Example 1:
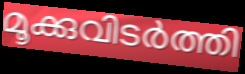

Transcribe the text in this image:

മൂക്കുവിടർത്തി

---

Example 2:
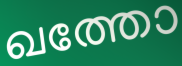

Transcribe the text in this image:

ഖത്തോ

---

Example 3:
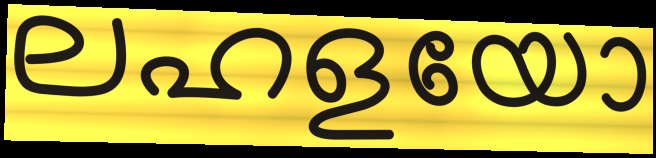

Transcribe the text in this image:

ലഹളയോ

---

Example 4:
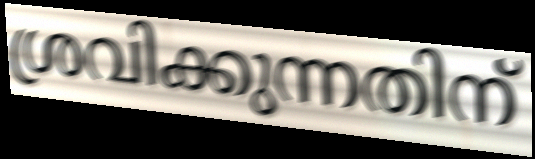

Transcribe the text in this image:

ശ്രവിക്കുന്നതിന്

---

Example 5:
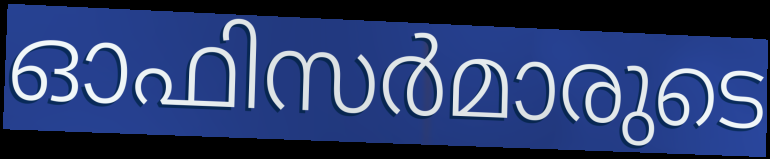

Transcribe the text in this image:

ഓഫിസർമാരുടെ